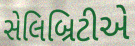
સેલિબ્રિટીએ